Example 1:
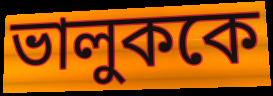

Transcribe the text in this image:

ভালুককে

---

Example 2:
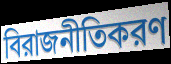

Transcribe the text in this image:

বিরাজনীতিকরণ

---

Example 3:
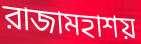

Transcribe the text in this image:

রাজামহাশয়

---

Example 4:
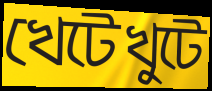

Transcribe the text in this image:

খেটেখুটে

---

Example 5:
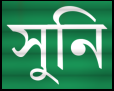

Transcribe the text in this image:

সুনি